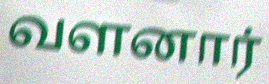
வளனார்